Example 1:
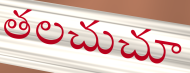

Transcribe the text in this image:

తలచుచూ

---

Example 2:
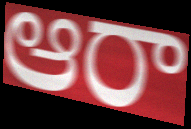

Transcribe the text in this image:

ఆరా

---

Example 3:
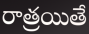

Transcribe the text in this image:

రాత్రయితే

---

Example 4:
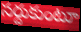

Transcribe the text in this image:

సర్దుకుంటూ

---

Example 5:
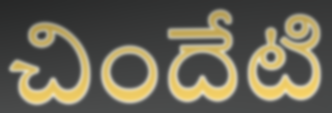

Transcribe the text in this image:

చిందేటి